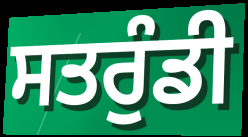
ਸਤਰੁੰਡੀ